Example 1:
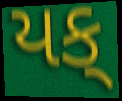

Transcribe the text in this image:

યક્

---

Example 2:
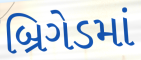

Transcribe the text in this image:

બ્રિગેડમાં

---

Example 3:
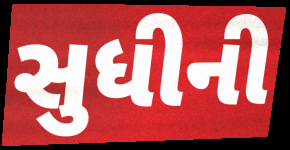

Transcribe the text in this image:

સુધીની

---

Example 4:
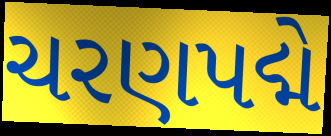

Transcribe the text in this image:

ચરણપદ્મે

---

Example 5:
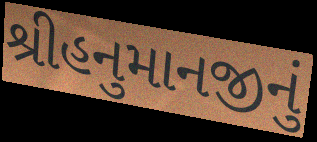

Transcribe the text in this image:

શ્રીહનુમાનજીનું